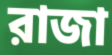
রাজা